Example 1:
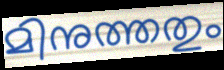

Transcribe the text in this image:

മിനുത്തതും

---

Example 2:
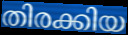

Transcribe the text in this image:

തിരക്കിയ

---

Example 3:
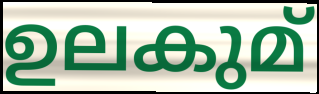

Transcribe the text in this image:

ഉലകുമ്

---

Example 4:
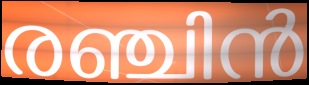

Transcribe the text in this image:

രഞ്ചിൻ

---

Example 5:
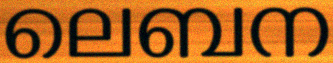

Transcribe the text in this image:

ലെബന